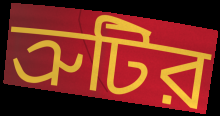
ত্রুটির